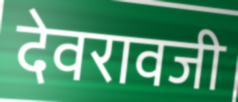
देवरावजी